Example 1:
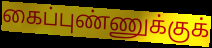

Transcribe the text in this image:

கைப்புண்ணுக்குக்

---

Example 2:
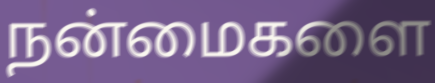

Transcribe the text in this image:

நன்மைகளை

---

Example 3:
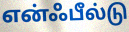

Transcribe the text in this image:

என்ஃபீல்டு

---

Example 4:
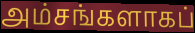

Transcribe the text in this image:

அம்சங்களாகப்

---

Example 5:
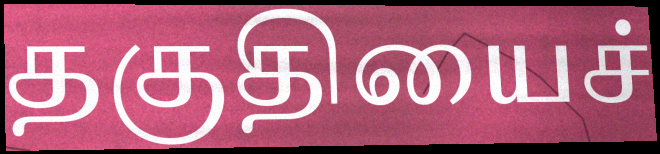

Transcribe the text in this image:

தகுதியைச்